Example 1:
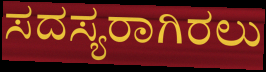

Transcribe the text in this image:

ಸದಸ್ಯರಾಗಿರಲು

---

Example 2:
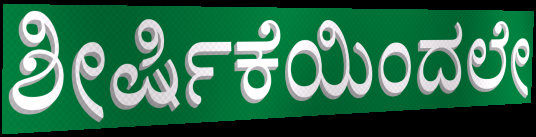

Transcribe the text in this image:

ಶೀರ್ಷಿಕೆಯಿಂದಲೇ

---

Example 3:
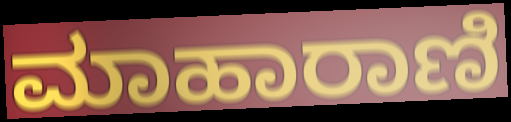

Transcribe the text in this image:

ಮಾಹಾರಾಣಿ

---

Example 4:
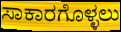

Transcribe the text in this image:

ಸಾಕಾರಗೊಳ್ಳಲು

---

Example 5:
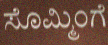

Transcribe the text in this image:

ಸೊಮ್ಮಿಂಗೆ